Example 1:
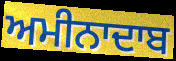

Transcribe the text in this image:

ਅਮੀਨਾਦਾਬ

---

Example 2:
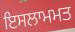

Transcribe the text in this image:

ਇਸਲਾਮਮਤ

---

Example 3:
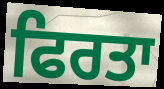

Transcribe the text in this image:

ਫਿਰਤਾ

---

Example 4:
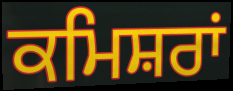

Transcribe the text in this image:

ਕਮਿਸ਼ਰਾਂ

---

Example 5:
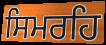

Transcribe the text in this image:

ਸਿਮਰਹਿ